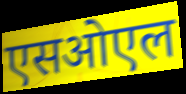
एसओएल